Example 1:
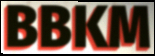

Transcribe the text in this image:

BBKM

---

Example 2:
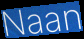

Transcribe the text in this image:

Naan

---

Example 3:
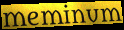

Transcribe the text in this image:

meminum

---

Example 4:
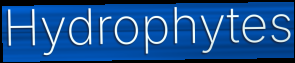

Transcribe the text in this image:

Hydrophytes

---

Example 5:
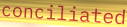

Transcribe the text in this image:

conciliated